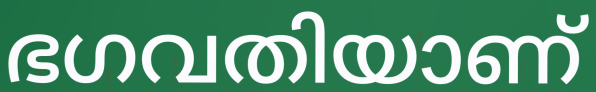
ഭഗവതിയാണ്